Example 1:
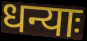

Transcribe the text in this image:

धन्याः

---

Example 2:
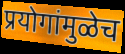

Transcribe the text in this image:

प्रयोगांमुळेच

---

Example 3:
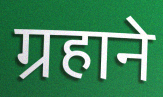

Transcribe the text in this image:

ग्रहाने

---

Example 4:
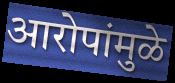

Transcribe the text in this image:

आरोपांमुळे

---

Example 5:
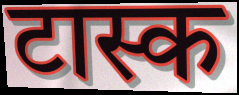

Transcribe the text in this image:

टास्क